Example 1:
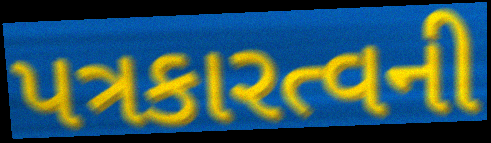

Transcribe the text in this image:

પત્રકારત્વની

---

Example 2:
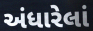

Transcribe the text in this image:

અંધારેલાં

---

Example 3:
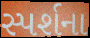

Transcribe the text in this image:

સ્પર્શના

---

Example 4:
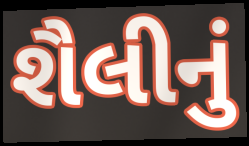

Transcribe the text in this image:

શૈલીનું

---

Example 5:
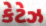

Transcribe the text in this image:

કેટેઝ